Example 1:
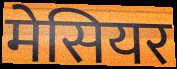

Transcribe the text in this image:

मेसियर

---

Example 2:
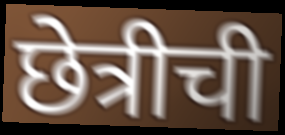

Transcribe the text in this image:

छेत्रीची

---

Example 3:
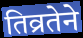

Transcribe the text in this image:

तिव्रतेने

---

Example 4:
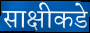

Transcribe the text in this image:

साक्षीकडे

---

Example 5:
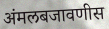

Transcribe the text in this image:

अंमलबजावणीस